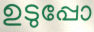
ഉടുപ്പോ